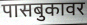
पासबुकावर